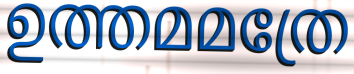
ഉത്തമമത്രേ